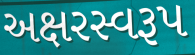
અક્ષરસ્વરૂપ